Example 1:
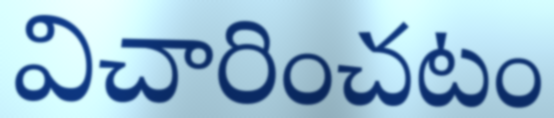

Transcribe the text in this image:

విచారించటం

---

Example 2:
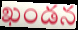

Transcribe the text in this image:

ఖండన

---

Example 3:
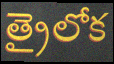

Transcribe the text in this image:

త్రైలోక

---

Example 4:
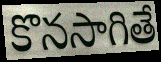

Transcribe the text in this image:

కొనసాగితే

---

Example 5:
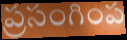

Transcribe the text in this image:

ప్రసంగింప